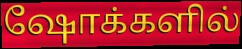
ஷோக்களில்